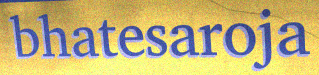
bhatesaroja